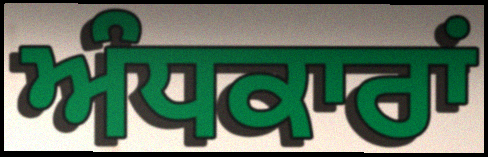
ਅੰਧਕਾਰਾਂ